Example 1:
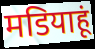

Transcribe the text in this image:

मडियाहूं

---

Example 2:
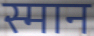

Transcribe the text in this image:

स्मान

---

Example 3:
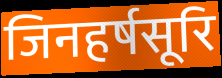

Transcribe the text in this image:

जिनहर्षसूरि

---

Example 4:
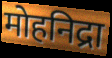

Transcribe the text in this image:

मोहनिद्रा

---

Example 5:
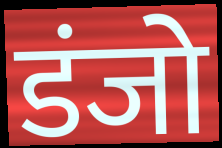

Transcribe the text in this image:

डंजो